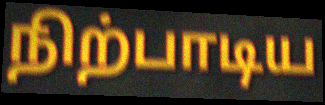
நிற்பாடிய